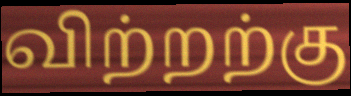
விற்றற்கு